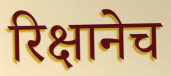
रिक्षानेच